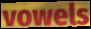
vowels